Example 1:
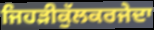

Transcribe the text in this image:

ਜਿਹੜੀਕੁੱਲਕਰਜੇਦਾ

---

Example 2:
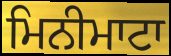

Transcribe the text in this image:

ਮਿਨੀਮਾਟਾ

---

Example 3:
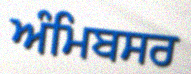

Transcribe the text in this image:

ਅੰਮਿਬਸਰ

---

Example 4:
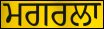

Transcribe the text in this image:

ਮਗਰਲਾ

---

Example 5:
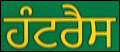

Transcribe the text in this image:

ਹੰਟਰੈਸ